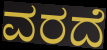
ವರದೆ